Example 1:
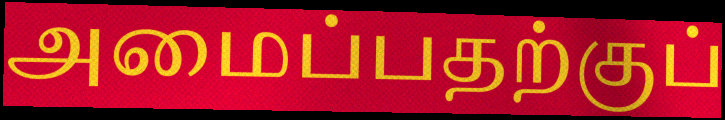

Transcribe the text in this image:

அமைப்பதற்குப்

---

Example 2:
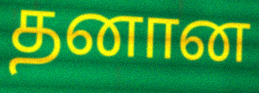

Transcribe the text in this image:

தனான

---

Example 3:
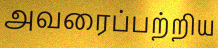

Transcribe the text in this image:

அவரைப்பற்றிய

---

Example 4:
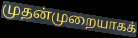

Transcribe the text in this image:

முதன்முறையாகக்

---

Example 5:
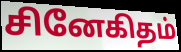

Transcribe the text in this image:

சினேகிதம்